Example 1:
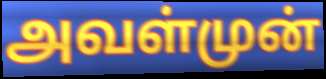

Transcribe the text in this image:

அவள்முன்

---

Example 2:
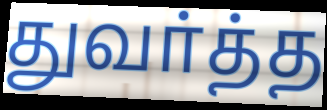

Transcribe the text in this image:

துவர்த்த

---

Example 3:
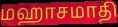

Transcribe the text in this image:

மஹாசமாதி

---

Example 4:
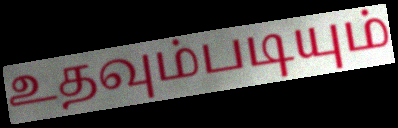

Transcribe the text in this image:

உதவும்படியும்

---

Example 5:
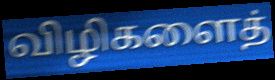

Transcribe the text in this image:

விழிகளைத்